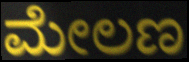
ಮೇಲಣ